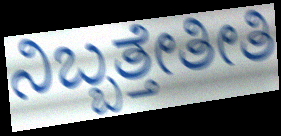
ನಿಬ್ಬತ್ತೇತೀತಿ